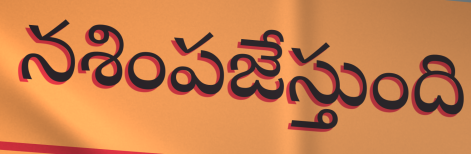
నశింపజేస్తుంది